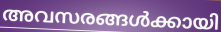
അവസരങ്ങൾക്കായി